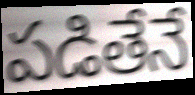
పడితేనే